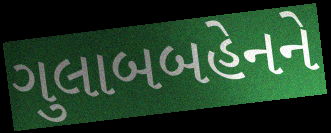
ગુલાબબહેનને